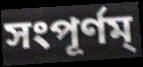
সংপূর্ণম্